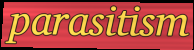
parasitism